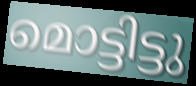
മൊട്ടിട്ടു